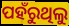
ପହଁରୁଥିଲୁ